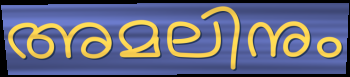
അമലിനും